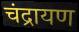
चंद्रायण